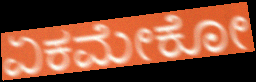
ಏಕಮೇಕೋ